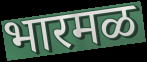
भारमळ